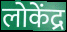
लोकेंद्र